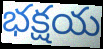
భక్షయ